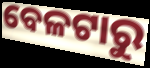
ବେଳଟାରୁ